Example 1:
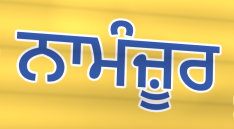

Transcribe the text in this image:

ਨਾਮੰਜ਼ੂਰ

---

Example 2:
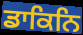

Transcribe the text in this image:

ਡਾਕਿਨਿ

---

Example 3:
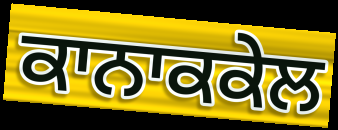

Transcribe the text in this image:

ਕਾਨਾਕਕੇਲ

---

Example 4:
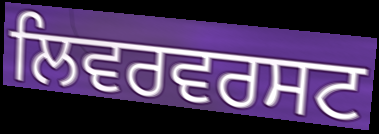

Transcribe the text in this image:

ਲਿਵਰਵਰਸਟ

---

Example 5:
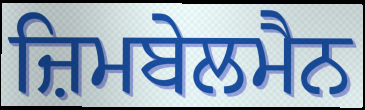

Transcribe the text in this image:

ਜ਼ਿਮਬੇਲਮੈਨ